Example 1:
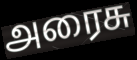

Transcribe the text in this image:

அரைசு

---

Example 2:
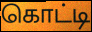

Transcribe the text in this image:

கொட்டி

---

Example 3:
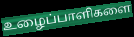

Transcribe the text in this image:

உழைப்பாளிகளை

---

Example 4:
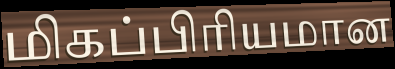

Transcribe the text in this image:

மிகப்பிரியமான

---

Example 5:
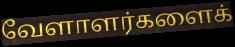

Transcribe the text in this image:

வேளாளர்களைக்